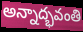
అన్నాద్భవంతి